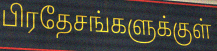
பிரதேசங்களுக்குள்